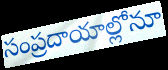
సంప్రదాయాల్లోనూ